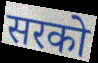
सरको